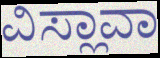
ವಿಸ್ಲಾವಾ